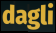
dagli